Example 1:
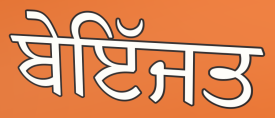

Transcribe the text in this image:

ਬੇਇੱਜਤ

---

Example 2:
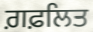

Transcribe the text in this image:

ਗ਼ਫ਼ਲਿਤ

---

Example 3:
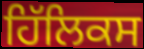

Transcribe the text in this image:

ਹਿੱਲਿਕਸ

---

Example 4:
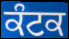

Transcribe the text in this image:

ਕੰਟਕ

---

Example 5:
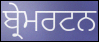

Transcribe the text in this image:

ਬ੍ਰੇਮਰਟਨ